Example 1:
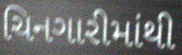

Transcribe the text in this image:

ચિનગારીમાંથી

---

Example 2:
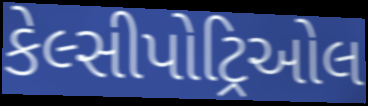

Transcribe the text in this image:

કેલ્સીપોટ્રિઓલ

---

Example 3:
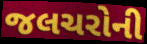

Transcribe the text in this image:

જલચરોની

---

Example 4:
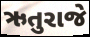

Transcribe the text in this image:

ઋતુરાજે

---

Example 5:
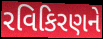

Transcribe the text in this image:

રવિકિરણને